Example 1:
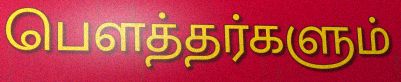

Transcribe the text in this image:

பௌத்தர்களும்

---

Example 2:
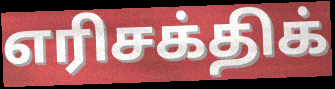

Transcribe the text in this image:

எரிசக்திக்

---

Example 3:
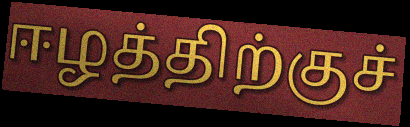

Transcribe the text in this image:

ஈழத்திற்குச்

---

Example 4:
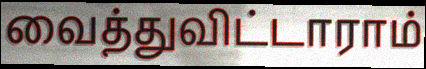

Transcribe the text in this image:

வைத்துவிட்டாராம்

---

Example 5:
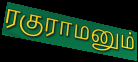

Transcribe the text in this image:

ரகுராமனும்